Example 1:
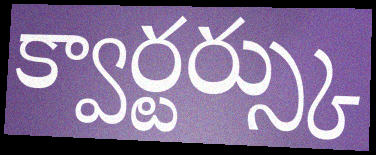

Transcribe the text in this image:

క్వార్టర్స్కు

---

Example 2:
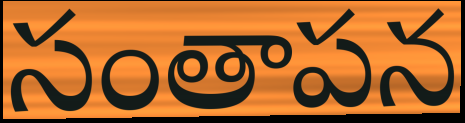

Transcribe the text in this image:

సంతాపన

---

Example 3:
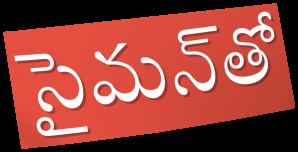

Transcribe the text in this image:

సైమన్‌తో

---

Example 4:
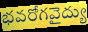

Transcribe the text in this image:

భవరోగవైద్యు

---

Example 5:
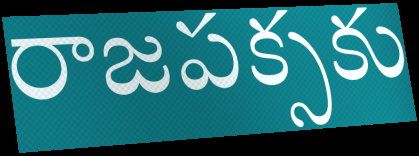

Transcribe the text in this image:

రాజపక్సకు